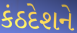
કંઠદેશને